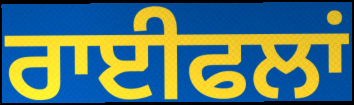
ਰਾਈਫਲਾਂ